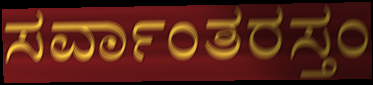
ಸರ್ವಾಂತರಸ್ತಂ